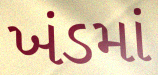
ખંડમાં